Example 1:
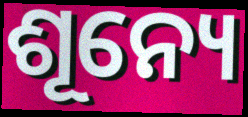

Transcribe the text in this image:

ଶୂନ୍ୟେ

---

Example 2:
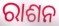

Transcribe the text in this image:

ରାଶନ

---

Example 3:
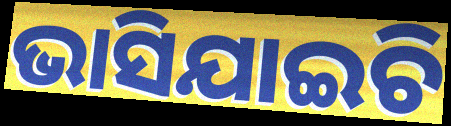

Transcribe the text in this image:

ଭାସିଯାଇଚି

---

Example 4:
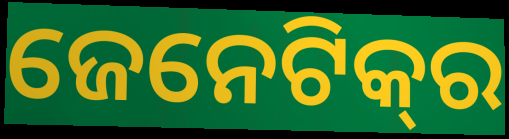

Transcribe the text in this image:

ଜେନେଟିକ୍‌ର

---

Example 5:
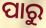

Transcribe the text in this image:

ପାରୁ